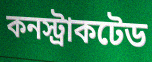
কনস্ট্রাকটেড